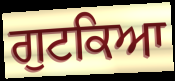
ਗੁਟਕਿਆ